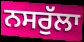
ਨਸਰੁੱਲਾ